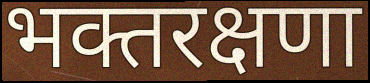
भक्तरक्षणा